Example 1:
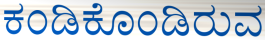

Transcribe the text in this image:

ಕಂಡಿಕೊಂಡಿರುವ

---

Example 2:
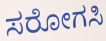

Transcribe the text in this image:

ಸರೋಗಸಿ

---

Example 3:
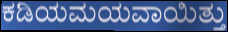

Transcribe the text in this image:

ಕಡಿಯಮಯವಾಯಿತ್ತು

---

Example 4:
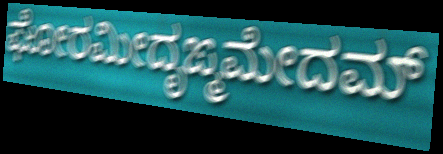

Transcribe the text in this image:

ಘೋರಮೀದೃಙ್ಮಮೇದಮ್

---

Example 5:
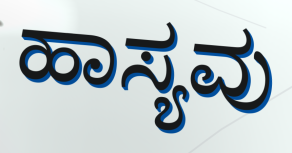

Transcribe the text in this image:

ಹಾಸ್ಯವು